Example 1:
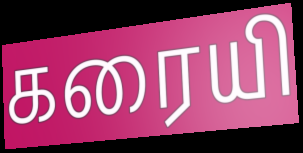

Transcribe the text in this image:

கரையி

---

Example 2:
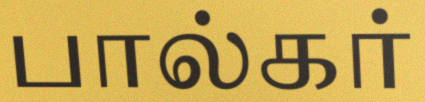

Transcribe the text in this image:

பால்கர்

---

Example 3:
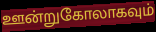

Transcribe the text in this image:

ஊன்றுகோலாகவும்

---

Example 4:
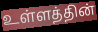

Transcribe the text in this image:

உள்ளத்தின்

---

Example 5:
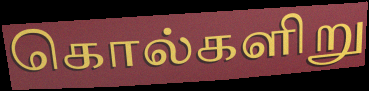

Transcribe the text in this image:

கொல்களிறு